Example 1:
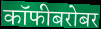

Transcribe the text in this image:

कॉफीबरोबर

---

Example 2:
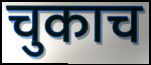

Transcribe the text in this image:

चुकाच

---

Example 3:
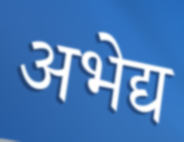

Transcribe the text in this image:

अभेद्य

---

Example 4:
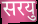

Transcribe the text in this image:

सरयु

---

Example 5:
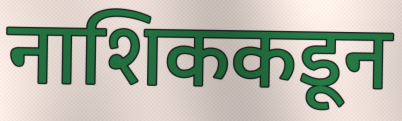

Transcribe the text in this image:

नाशिककडून